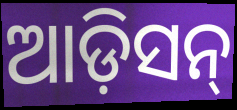
ଆଡ଼ିସନ୍